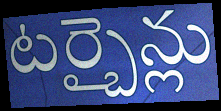
టర్బైన్లు